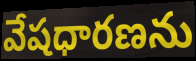
వేషధారణను